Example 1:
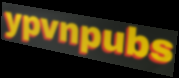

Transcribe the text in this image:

ypvnpubs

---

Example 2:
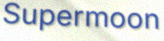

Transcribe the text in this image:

Supermoon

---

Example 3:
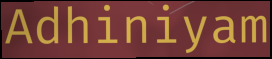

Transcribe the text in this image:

Adhiniyam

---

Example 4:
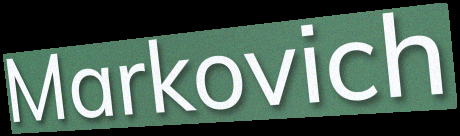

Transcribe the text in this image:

Markovich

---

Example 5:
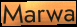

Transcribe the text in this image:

Marwa